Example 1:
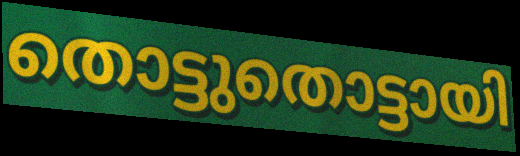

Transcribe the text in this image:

തൊട്ടുതൊട്ടായി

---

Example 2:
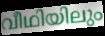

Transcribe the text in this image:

വീഥിയിലും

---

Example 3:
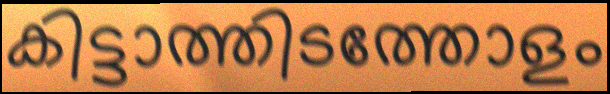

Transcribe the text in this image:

കിട്ടാത്തിടത്തോളം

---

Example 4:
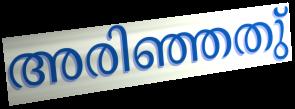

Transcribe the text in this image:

അരിഞ്ഞതു്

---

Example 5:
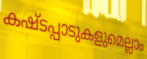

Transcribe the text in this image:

കഷ്ടപ്പാടുകളുമെല്ലാം